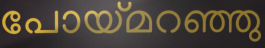
പോയ്മറഞ്ഞു